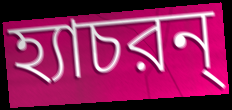
হ্যাচরন্